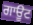
ਗਾਊਟ